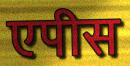
एपीस